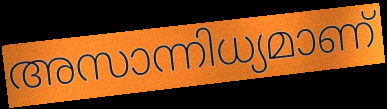
അസാന്നിധ്യമാണ്